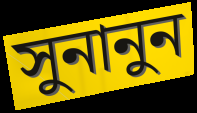
সুনানুন